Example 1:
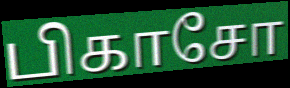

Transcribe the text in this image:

பிகாசோ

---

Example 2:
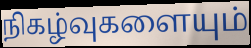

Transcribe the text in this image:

நிகழ்வுகளையும்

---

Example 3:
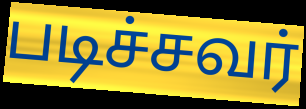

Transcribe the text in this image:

படிச்சவர்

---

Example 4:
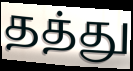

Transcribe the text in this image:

தத்து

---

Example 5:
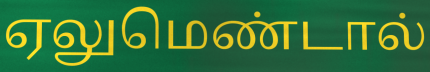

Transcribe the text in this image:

ஏலுமெண்டால்